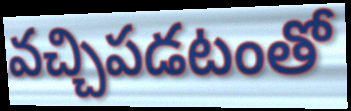
వచ్చిపడటంతో